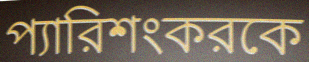
প্যারিশংকরকে